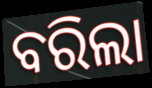
ବରିଲା